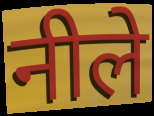
नीले